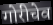
गोरीचेव